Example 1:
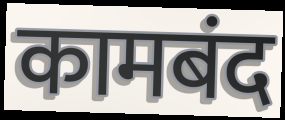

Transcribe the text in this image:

कामबंद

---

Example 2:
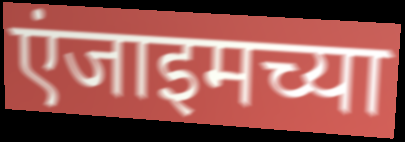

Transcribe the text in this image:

एंजाइमच्या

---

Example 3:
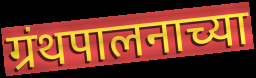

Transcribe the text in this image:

ग्रंथपालनाच्या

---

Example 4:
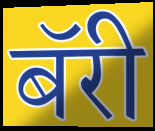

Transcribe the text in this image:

बॅरी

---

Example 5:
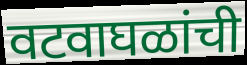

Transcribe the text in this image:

वटवाघळांची